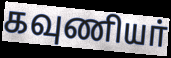
கவுணியர்